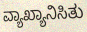
ವ್ಯಾಖ್ಯಾನಿಸಿತು